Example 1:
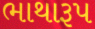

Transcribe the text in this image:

ભાથારૂપ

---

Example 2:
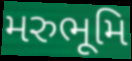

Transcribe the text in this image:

મરુભૂમિ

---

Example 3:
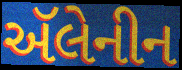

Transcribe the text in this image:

ઍલેનીન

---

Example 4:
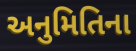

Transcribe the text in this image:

અનુમિતિના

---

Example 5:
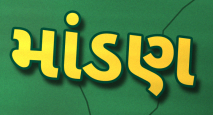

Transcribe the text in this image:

માંડણ